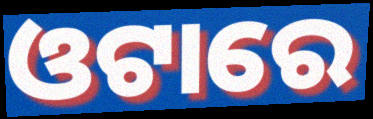
ଓଟାରେ